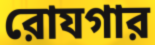
রোযগার